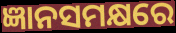
ଜ୍ଞାନସମକ୍ଷରେ